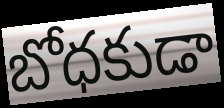
బోధకుడా